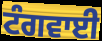
ਟੰਗਵਾਈ